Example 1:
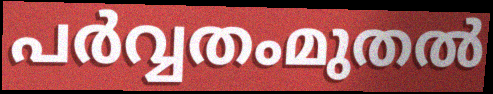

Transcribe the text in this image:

പർവ്വതംമുതൽ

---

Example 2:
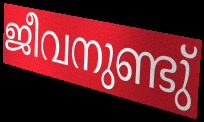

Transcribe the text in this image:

ജീവനുണ്ടു്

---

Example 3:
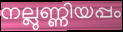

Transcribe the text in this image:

നല്ലുണ്ണിയപ്പം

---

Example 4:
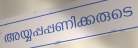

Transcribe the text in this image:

അയ്യപ്പപ്പണിക്കരുടെ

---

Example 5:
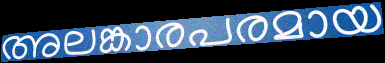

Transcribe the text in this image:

അലങ്കാരപരമായ